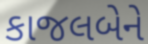
કાજલબેને